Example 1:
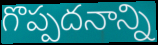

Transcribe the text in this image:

గొప్పదనాన్ని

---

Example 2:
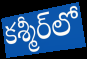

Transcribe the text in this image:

కశ్మీర్‌లో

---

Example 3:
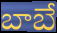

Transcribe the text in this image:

బాబే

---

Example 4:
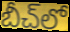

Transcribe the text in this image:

బీచ్‌లో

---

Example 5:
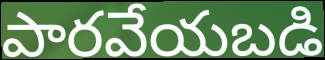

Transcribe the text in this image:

పారవేయబడి